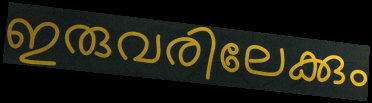
ഇരുവരിലേക്കും